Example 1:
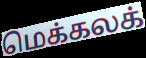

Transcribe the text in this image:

மெக்கலக்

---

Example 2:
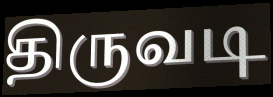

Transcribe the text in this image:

திருவடி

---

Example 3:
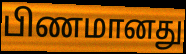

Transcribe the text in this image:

பிணமானது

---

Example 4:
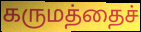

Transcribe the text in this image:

கருமத்தைச்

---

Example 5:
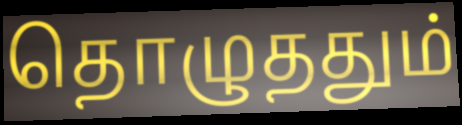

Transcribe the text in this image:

தொழுததும்